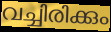
വച്ചിരിക്കും